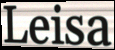
Leisa